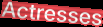
Actresses